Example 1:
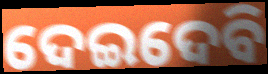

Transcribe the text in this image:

ଦେଇଦେବି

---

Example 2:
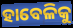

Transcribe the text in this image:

ହାବେଳିକୁ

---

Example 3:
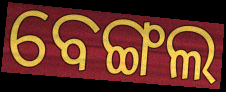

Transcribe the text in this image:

ବେଙ୍ଗଲ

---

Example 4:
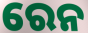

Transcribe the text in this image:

ରେନ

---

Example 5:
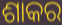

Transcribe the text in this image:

ଶାକର